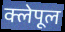
क्लेपूल